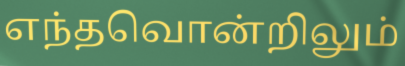
எந்தவொன்றிலும்